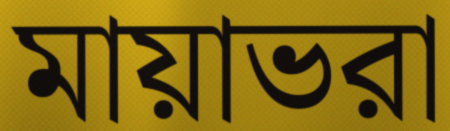
মায়াভরা